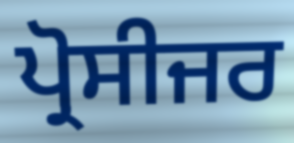
ਪ੍ਰੋਸੀਜਰ